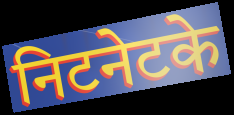
निटनेटके